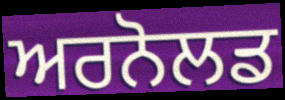
ਅਰਨੋਲਡ